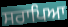
ਸਰਾਪਿਆ